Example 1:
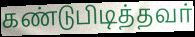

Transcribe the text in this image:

கண்டுபிடித்தவர்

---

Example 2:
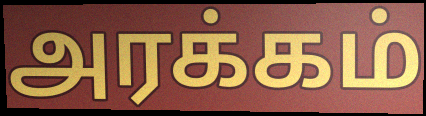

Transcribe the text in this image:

அரக்கம்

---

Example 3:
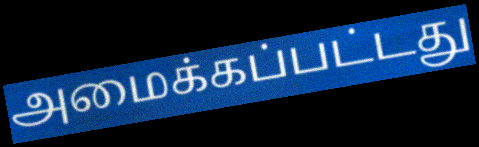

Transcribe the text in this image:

அமைக்கப்பட்டது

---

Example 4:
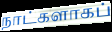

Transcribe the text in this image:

நாட்களாகப்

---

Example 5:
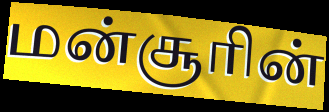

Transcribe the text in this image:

மன்சூரின்